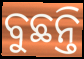
ବୁଛନ୍ତି